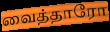
வைத்தாரோ